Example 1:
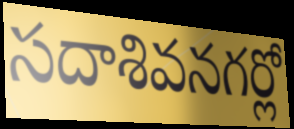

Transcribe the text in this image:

సదాశివనగర్లో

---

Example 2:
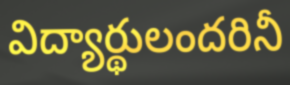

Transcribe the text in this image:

విద్యార్థులందరినీ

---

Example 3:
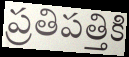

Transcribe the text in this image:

ప్రతిపత్తికి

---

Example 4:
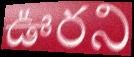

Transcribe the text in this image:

ఊరని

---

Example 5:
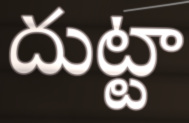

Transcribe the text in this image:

దుట్టా